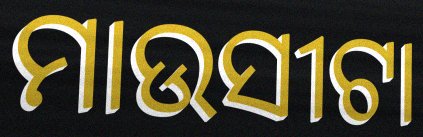
ମାଉସୀଟା